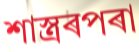
শাস্ত্ৰৰপৰা